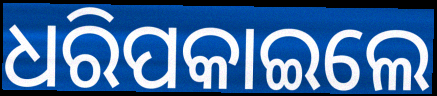
ଧରିପକାଇଲେ